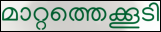
മാറ്റത്തെക്കൂടി